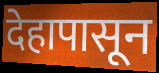
देहापासून